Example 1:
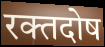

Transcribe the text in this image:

रक्‍तदोष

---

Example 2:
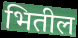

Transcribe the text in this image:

भितील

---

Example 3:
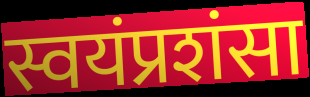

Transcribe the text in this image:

स्वयंप्रशंसा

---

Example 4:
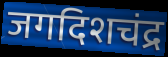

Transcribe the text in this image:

जगदिशचंद्र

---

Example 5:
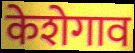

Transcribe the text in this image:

केशेगाव